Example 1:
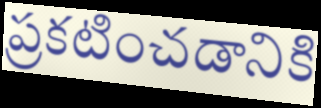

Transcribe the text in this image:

ప్రకటించడానికి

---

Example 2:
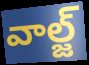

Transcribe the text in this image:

వాల్జ్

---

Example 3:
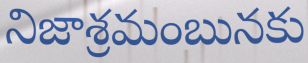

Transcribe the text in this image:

నిజాశ్రమంబునకు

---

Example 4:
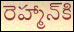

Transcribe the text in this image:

రెహ్మాన్‌కి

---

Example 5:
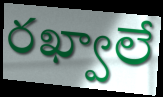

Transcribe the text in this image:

రఖ్వాలే